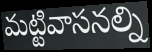
మట్టివాసనల్ని